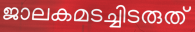
ജാലകമടച്ചിടരുത്